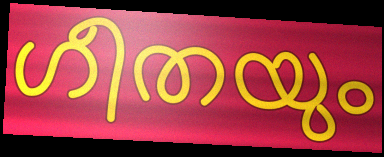
ഗീതയും